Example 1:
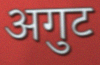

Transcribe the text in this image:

अगुट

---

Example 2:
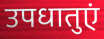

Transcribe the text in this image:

उपधातुएं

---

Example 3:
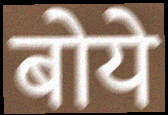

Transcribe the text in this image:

बोये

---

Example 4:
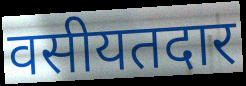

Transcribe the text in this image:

वसीयतदार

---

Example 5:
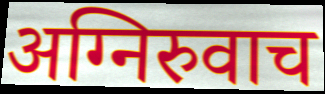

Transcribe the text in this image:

अग्निरुवाच